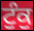
ਟੁੰਕੁ